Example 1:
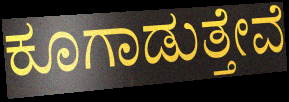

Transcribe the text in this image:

ಕೂಗಾಡುತ್ತೇವೆ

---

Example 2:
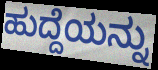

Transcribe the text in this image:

ಹುದ್ದೆಯನ್ನು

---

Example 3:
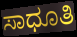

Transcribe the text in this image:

ಸಾಧೂತಿ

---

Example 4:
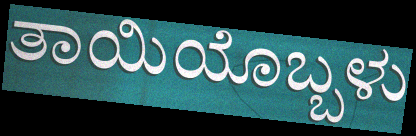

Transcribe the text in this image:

ತಾಯಿಯೊಬ್ಬಳು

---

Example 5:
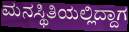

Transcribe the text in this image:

ಮನಸ್ಥಿತಿಯಲ್ಲಿದ್ದಾಗ